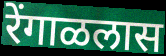
रेंगाळलास